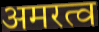
अमरत्व